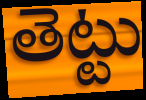
తెట్టు